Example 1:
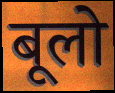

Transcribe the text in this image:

बूलो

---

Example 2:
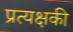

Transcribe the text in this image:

प्रत्यक्षकी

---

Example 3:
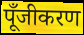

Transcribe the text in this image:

पूँजीकरण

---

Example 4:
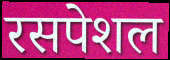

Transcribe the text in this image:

रसपेशल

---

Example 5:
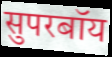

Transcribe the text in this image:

सुपरबॉय